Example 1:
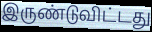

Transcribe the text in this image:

இருண்டுவிட்டது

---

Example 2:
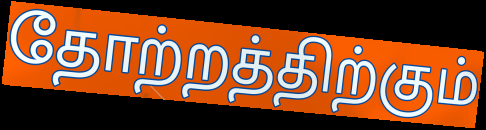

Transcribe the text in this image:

தோற்றத்திற்கும்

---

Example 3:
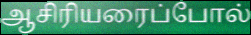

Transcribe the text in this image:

ஆசிரியரைப்போல்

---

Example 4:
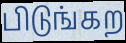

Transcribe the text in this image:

பிடுங்கற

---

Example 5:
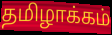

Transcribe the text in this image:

தமிழாக்கம்